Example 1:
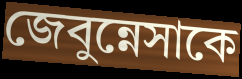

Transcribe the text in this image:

জেবুন্নেসাকে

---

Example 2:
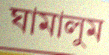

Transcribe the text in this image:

ঘামালুম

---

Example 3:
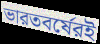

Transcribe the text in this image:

ভারতবর্ষেরই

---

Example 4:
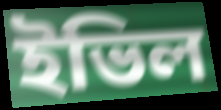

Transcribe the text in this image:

ইভিল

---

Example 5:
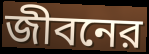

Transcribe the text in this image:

জীবনের